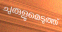
ചുരുളുമെടുത്ത്